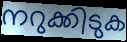
നറുക്കിടുക